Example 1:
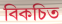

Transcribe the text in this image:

বিকচিত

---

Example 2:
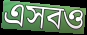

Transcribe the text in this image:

এসবও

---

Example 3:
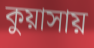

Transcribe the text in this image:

কুয়াসায়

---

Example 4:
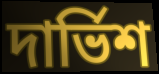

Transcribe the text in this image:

দার্ভিশ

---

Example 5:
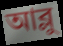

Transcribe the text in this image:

আব্লু